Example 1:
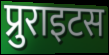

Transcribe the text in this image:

प्रुराइटस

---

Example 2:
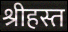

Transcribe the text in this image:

श्रीहस्त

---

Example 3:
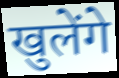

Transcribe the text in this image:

खुलेंगे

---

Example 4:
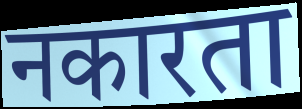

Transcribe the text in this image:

नकारता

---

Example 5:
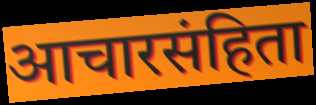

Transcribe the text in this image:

आचारसंहिता